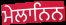
ਮੇਲਾਨਿਨ